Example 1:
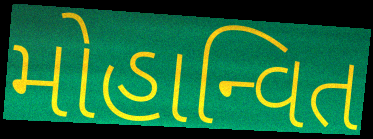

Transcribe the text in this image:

મોહાન્વિત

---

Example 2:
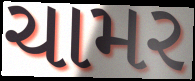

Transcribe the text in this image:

ચામર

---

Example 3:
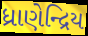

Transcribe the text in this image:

ધ્રાણેન્દ્રિય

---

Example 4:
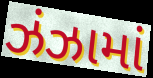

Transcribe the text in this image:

ઝંઝામાં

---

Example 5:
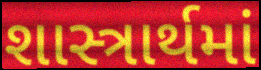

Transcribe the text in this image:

શાસ્ત્રાર્થમાં